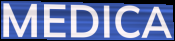
MEDICA